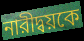
নারীদ্বয়কে